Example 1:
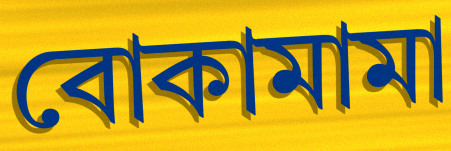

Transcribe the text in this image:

বোকামামা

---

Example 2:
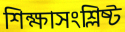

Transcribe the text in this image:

শিক্ষাসংশ্লিষ্ট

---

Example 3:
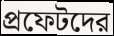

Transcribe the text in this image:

প্রফেটদের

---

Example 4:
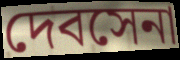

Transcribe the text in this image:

দেবসেনা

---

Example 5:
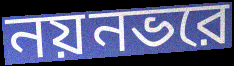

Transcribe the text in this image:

নয়নভরে